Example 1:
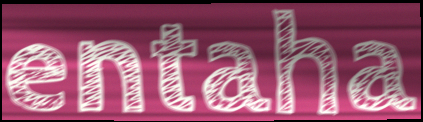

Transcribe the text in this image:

entaha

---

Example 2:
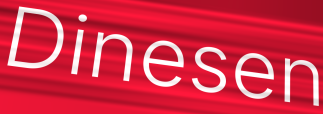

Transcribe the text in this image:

Dinesen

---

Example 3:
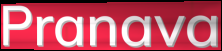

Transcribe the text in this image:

Pranava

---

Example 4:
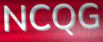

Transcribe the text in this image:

NCQG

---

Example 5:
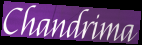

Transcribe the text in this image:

Chandrima